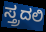
ಸ್ತ್ರದಲಿ